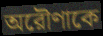
অরৌণাকে